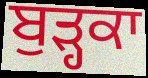
ਬੁੜ੍ਹਕਾ